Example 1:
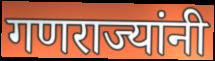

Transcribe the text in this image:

गणराज्यांनी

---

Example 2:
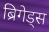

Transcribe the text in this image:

ब्रिगेड्स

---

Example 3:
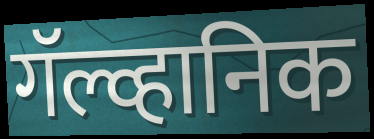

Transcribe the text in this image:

गॅल्व्हानिक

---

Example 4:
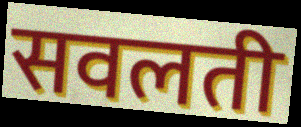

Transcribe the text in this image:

सवलती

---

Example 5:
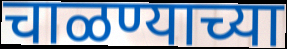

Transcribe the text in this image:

चाळण्याच्या